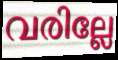
വരില്ലേ